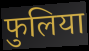
फुलिया